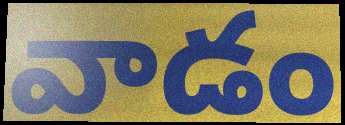
వాడం